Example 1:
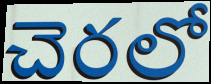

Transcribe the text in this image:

చెరలో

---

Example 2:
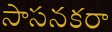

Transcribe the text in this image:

సాసనకరా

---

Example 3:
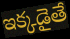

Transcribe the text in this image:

ఇక్కడైతే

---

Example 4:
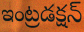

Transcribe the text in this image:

ఇంట్రడక్షన్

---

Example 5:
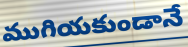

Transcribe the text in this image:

ముగియకుండానే